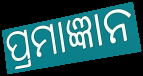
ପ୍ରମାଜ୍ଞାନ